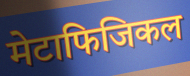
मेटाफिजिकल